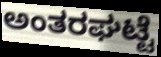
ಅಂತರಘಟ್ಟೆ